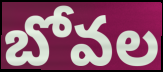
బోవల